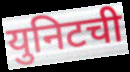
युनिटची